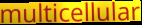
multicellular